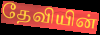
தேவியின்